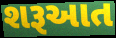
શરૂઆત